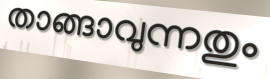
താങ്ങാവുന്നതും